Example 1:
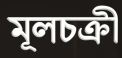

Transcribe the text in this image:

মূলচক্রী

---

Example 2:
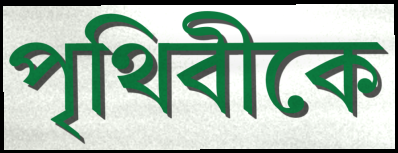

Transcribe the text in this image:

পৃথিবীকে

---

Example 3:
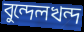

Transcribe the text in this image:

বুন্দেলখন্দ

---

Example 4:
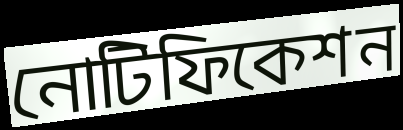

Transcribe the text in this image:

নোটিফিকেশন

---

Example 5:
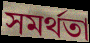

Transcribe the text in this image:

সমর্থতা